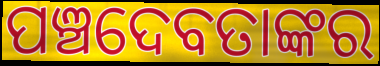
ପଞ୍ଚଦେବତାଙ୍କର